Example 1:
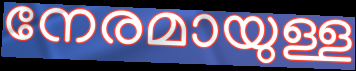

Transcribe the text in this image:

നേരമായുള്ള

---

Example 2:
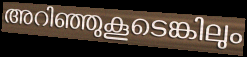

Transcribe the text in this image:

അറിഞ്ഞുകൂടെങ്കിലും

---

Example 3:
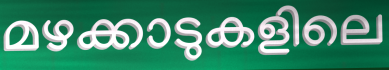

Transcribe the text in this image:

മഴക്കാടുകളിലെ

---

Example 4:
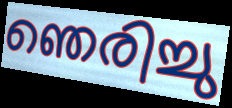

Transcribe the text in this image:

ഞെരിച്ചു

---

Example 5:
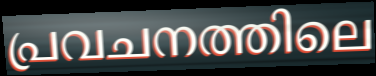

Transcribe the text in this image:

പ്രവചനത്തിലെ